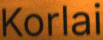
Korlai